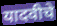
यादवीचे